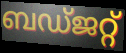
ബഡ്ജറ്റ്